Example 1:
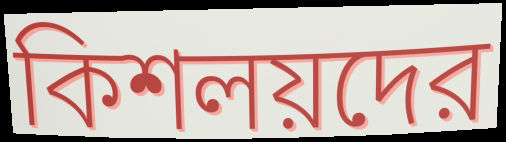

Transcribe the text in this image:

কিশলয়দের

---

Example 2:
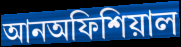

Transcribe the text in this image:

আনঅফিশিয়াল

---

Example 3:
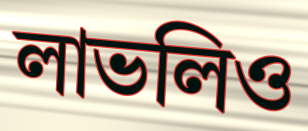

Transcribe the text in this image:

লাভলিও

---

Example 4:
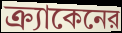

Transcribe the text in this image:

ক্র্যাকেনের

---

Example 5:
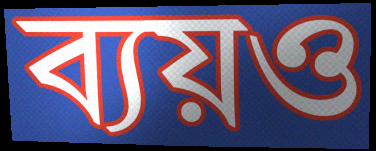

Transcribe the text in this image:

ব্যয়ও